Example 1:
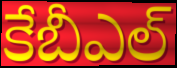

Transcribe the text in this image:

కేబీఎల్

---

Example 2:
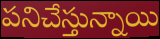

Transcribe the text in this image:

పనిచేస్తున్నాయి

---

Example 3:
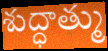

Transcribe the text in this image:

శుద్ధాత్ము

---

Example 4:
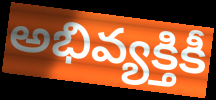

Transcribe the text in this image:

అభివ్యక్తికీ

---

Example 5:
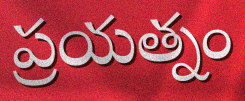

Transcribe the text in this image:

ప్రయత్నం